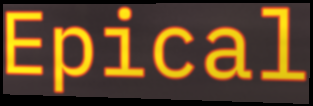
Epical